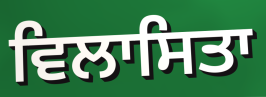
ਵਿਲਾਸਿਤਾ